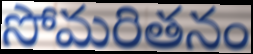
సోమరితనం